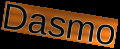
Dasmo